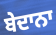
ਬੇਦਾਨਾ